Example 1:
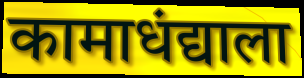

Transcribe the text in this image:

कामाधंद्याला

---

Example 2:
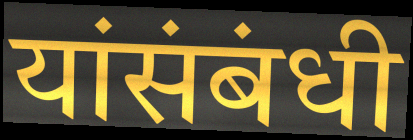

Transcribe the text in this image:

यांसंबंधी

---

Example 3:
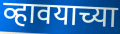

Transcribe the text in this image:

व्हावयाच्या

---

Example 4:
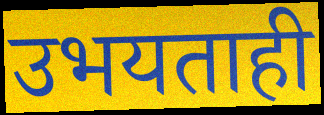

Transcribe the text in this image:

उभयताही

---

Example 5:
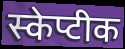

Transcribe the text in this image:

स्केप्टीक